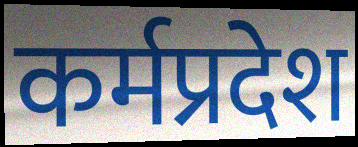
कर्मप्रदेश